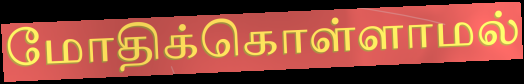
மோதிக்கொள்ளாமல்